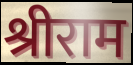
श्रीराम